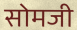
सोमजी